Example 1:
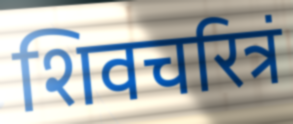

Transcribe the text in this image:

शिवचरित्रं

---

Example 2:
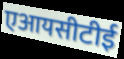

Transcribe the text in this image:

एआयसीटीई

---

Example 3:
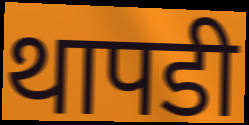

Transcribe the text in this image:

थापडी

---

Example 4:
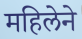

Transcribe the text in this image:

महिलेने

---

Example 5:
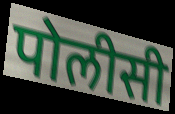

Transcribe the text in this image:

पोलीसी